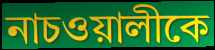
নাচওয়ালীকে